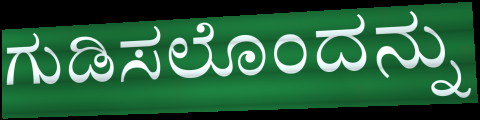
ಗುಡಿಸಲೊಂದನ್ನು